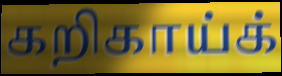
கறிகாய்க்